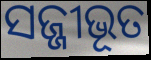
ସଜ୍ଜୀଭୂତ